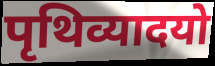
पृथिव्यादयो